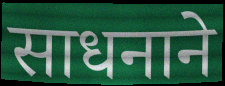
साधनाने